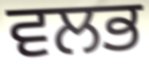
ਵਲਭ